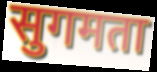
सुगमता